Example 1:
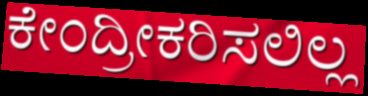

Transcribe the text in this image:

ಕೇಂದ್ರೀಕರಿಸಲಿಲ್ಲ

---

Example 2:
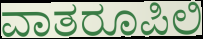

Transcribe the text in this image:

ವಾತರೂಪಿಲಿ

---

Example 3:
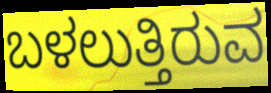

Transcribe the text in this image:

ಬಳಲುತ್ತಿರುವ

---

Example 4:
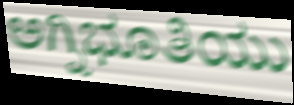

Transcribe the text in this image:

ಅಗ್ನಿಭೂತಿಯು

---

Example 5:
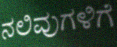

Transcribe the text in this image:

ನಲಿವುಗಳಿಗೆ